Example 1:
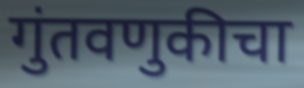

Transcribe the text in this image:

गुंतवणुकीचा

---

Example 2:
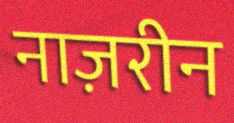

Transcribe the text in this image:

नाज़रीन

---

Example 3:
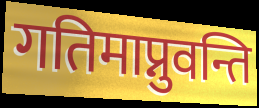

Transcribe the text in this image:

गतिमाप्नुवन्ति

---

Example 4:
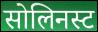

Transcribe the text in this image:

सोलिनस्ट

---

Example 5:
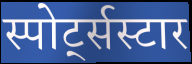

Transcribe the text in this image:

स्पोर्ट्सस्टार